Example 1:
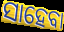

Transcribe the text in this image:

ସାହେବା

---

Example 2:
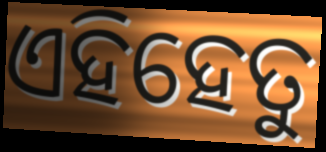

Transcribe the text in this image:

ଏହିହେତୁ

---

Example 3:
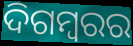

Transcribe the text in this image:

ଦିଗମ୍ୱରର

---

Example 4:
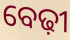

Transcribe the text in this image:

ବେଢ଼ୀ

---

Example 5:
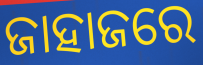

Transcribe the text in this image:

ଜାହାଜରେ